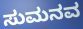
ಸುಮನವ